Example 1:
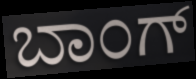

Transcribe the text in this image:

ಬಾಂಗ್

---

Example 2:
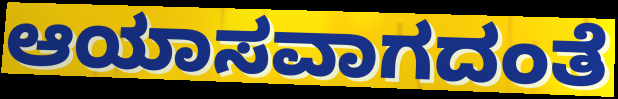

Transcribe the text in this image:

ಆಯಾಸವಾಗದಂತೆ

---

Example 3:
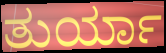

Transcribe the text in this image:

ತುರ್ಯಾ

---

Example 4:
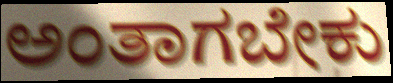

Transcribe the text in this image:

ಅಂತಾಗಬೇಕು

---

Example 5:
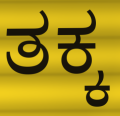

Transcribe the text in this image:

ತಕ್ಕ